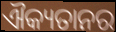
ଐକ୍ୟତାନର